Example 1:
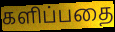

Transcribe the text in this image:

களிப்பதை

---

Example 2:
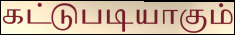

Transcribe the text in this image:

கட்டுபடியாகும்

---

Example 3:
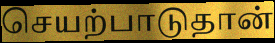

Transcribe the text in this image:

செயற்பாடுதான்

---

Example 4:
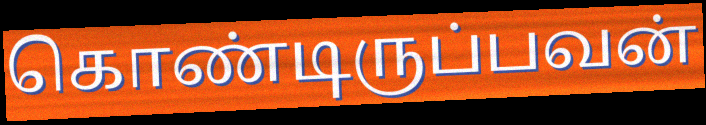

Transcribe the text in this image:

கொண்டிருப்பவன்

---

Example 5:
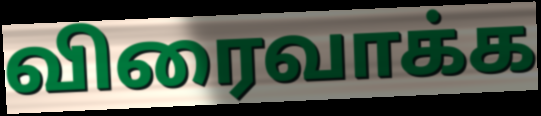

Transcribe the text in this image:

விரைவாக்க